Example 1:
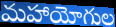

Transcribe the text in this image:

మహాయోగుల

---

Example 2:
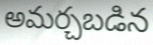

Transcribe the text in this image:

అమర్చబడిన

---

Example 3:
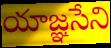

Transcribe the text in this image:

యాజ్ఞసేని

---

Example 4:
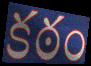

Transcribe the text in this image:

కఠం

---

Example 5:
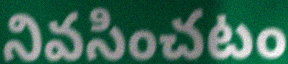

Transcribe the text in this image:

నివసించటం